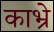
काभ्रे